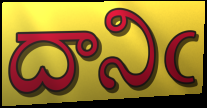
దానిఁ